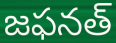
జఫనత్